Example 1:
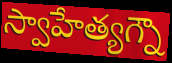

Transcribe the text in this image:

స్వాహేత్యగ్నౌ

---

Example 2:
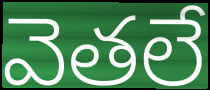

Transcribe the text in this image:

వెతలే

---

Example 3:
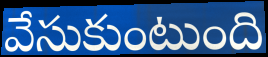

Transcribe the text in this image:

వేసుకుంటుంది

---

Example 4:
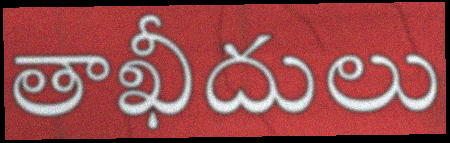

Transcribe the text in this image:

తాఖీదులు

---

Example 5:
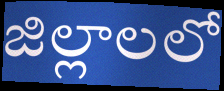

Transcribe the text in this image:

జిల్లాలలో